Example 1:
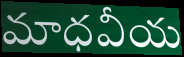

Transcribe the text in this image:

మాధవీయ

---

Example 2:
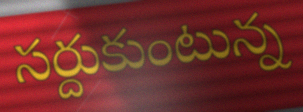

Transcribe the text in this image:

సర్దుకుంటున్న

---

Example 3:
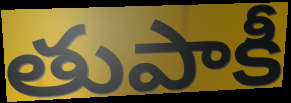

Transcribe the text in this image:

తుపాకీ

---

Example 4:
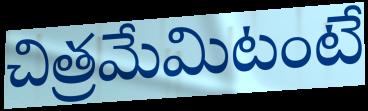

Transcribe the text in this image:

చిత్రమేమిటంటే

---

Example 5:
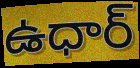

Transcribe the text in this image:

ఉధార్